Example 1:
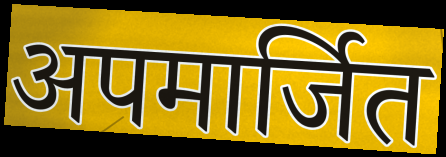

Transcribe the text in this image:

अपमार्जित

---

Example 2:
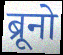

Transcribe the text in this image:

ब्रूनो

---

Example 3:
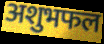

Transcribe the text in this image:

अशुभफल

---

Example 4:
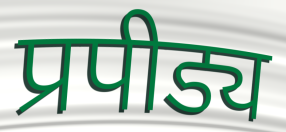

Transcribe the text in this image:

प्रपीड्य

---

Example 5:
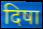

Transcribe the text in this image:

दिषा